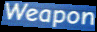
Weapon